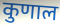
कुणाल